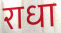
राधा